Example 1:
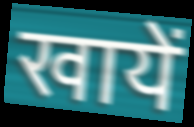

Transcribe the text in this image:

खायें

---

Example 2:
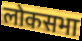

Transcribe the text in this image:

लोकसभा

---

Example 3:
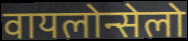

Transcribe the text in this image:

वायलोन्सेलो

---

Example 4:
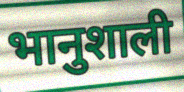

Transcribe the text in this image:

भानुशाली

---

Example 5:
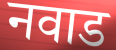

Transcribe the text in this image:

नवाड